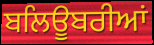
ਬਲਿਊਬਰੀਆਂ